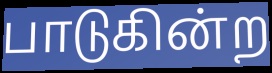
பாடுகின்ற